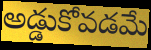
అడ్డుకోవడమే